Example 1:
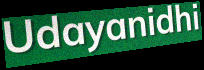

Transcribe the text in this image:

Udayanidhi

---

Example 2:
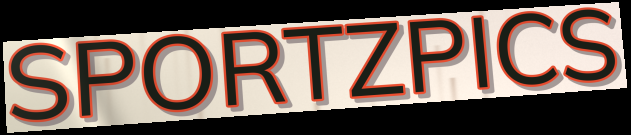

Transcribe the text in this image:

SPORTZPICS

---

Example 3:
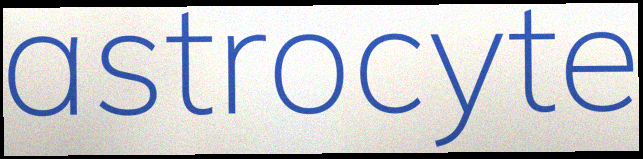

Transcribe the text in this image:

astrocyte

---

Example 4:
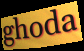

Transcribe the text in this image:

ghoda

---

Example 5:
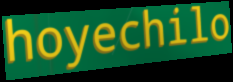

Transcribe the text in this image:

hoyechilo